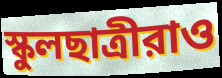
স্কুলছাত্রীরাও